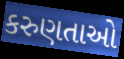
કરુણતાઓ